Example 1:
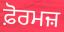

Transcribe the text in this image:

ਫ਼ੋਰਮਜ਼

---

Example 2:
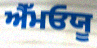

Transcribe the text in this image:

ਐੱਮਓਯੂ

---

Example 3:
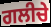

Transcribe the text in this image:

ਗਲੀਚੇ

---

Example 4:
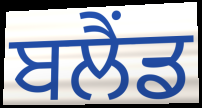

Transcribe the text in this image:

ਬਲੈਂਡ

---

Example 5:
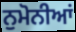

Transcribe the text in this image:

ਨੁਮੋਨੀਆਂ